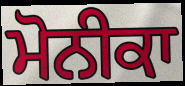
ਮੋਨੀਕਾ